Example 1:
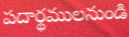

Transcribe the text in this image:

పదార్థములనుండి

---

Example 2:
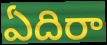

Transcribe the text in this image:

ఏదిరా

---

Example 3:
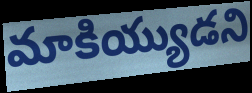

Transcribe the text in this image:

మాకియ్యుడని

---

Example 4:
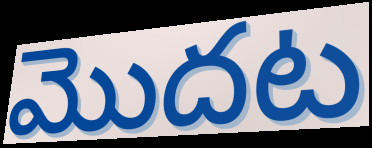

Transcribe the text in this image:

మొదట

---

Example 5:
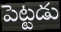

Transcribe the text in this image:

పెట్టడు